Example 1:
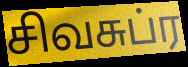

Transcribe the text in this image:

சிவசுப்ர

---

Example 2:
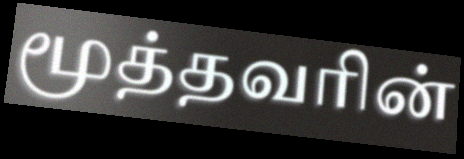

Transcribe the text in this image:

மூத்தவரின்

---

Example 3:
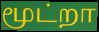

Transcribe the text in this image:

மூட்றா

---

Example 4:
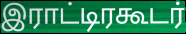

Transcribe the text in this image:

இராட்டிரகூடர்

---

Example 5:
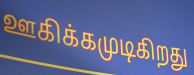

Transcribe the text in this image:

ஊகிக்கமுடிகிறது